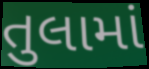
તુલામાં